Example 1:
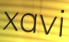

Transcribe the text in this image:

xavi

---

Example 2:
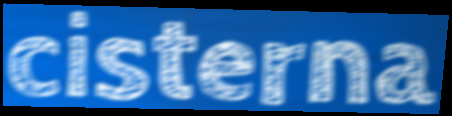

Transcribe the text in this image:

cisterna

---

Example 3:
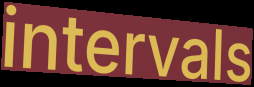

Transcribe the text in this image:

intervals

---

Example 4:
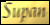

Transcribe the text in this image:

Supan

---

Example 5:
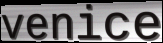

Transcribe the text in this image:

venice